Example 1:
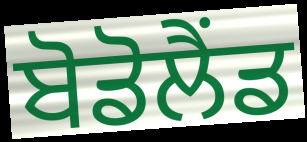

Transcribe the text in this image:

ਬੋਡੋਲੈਂਡ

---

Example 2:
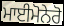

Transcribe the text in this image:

ਮਾਈਮੋਨੇਰੋ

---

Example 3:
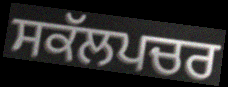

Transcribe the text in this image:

ਸਕੱਲਪਚਰ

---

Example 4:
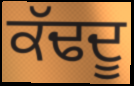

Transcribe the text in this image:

ਕੱਢਦੂ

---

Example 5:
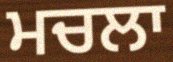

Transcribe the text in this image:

ਮਚਲਾ